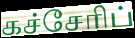
கச்சேரிப்